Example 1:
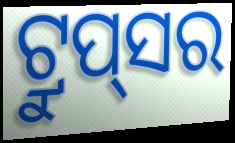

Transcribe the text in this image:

ଟ୍ରୁପ୍‌ସର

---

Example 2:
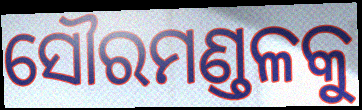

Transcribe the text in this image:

ସୌରମଣ୍ଡଳକୁ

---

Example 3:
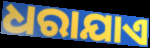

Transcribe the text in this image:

ଧରାଯାଏ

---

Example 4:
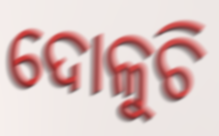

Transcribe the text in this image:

ଦୋଳୁଚି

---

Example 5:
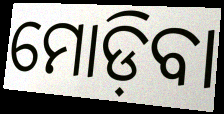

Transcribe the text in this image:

ମୋଡ଼ିବା